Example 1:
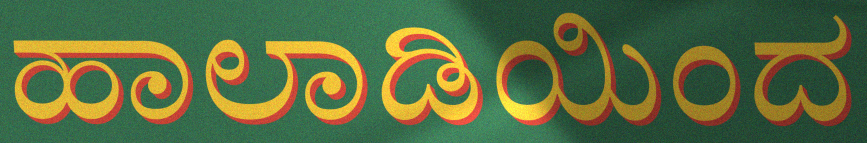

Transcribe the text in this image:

ಹಾಲಾಡಿಯಿಂದ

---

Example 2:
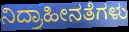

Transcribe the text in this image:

ನಿದ್ರಾಹೀನತೆಗಳು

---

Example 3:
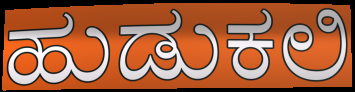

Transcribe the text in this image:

ಹುಡುಕಲಿ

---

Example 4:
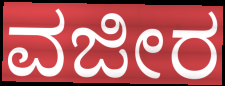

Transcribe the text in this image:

ವಜೀರ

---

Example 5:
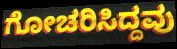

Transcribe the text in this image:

ಗೋಚರಿಸಿದ್ದವು